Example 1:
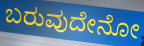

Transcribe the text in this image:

ಬರುವುದೇನೋ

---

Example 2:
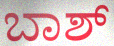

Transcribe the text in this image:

ಬಾಶ್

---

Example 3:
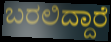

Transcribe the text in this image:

ಬರಲಿದ್ದಾರೆ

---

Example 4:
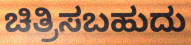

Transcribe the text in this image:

ಚಿತ್ರಿಸಬಹುದು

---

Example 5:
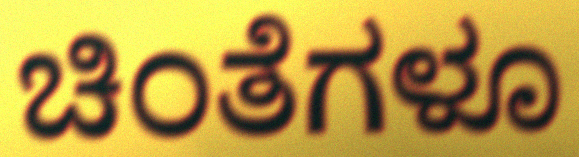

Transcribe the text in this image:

ಚಿಂತೆಗಳೂ